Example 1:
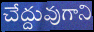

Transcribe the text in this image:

చేద్దువుగాని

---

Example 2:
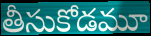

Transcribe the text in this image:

తీసుకోడమూ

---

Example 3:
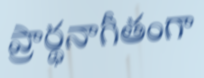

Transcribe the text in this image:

ప్రార్థనాగీతంగా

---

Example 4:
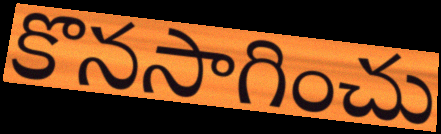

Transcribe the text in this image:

కొనసాగించు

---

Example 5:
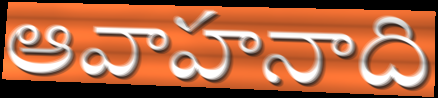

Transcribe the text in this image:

ఆవాహనాది